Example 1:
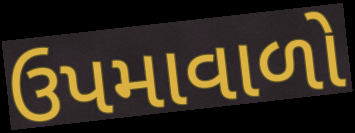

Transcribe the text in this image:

ઉપમાવાળો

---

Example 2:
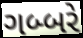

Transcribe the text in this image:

ગબ્બરે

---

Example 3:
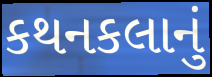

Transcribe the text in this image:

કથનકલાનું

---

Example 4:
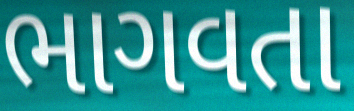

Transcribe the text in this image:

ભાગવતા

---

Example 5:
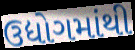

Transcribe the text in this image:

ઉદ્યોગમાંથી